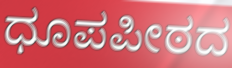
ಧೂಪಪೀಠದ